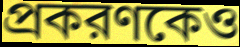
প্রকরণকেও